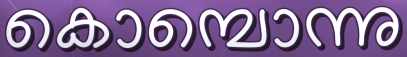
കൊമ്പൊന്നു